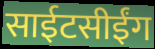
साईटसीईंग